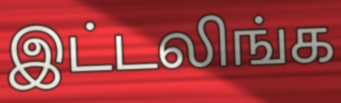
இட்டலிங்க